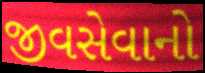
જીવસેવાનો